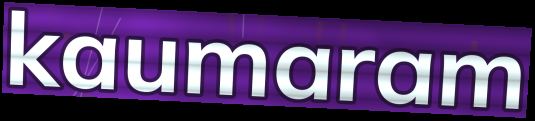
kaumaram